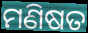
ମଣିଷତ